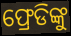
ଫ୍ରେଡିଙ୍କୁ